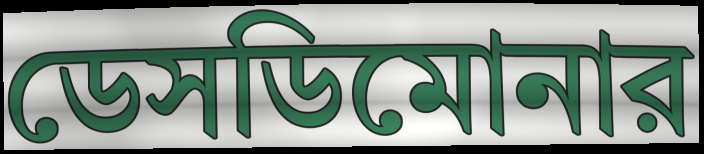
ডেসডিমোনার